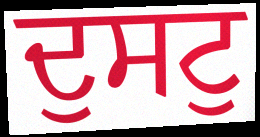
ਦੁਸਟੁ